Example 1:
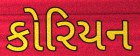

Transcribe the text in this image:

કોરિયન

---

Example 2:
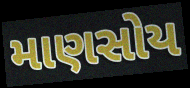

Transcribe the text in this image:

માણસોય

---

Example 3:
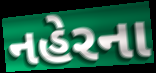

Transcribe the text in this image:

નહેરના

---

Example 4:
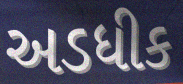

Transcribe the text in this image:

અડધીક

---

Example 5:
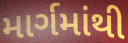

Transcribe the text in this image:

માર્ગમાંથી